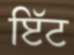
ਇੱਟ